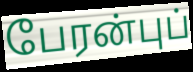
பேரன்புப்